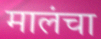
मालंचा